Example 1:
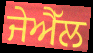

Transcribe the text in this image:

ਜੇਐੱਲ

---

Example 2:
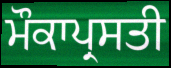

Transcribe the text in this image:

ਮੌਕਾਪ੍ਰਸਤੀ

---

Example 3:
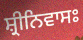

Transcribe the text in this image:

ਸ਼੍ਰੀਨਿਵਾਸਃ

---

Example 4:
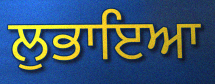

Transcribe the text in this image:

ਲੁਭਾਇਆ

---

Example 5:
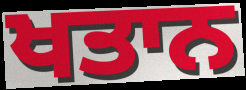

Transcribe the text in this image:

ਖਤਾਨ